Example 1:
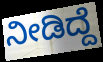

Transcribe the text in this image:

ನೀಡಿದ್ದೆ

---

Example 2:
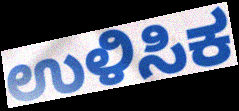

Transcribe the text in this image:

ಉಳಿಸಿಕ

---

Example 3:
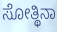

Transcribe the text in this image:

ಸೋತ್ಥಿನಾ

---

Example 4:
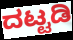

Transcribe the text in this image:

ದಟ್ಟಡಿ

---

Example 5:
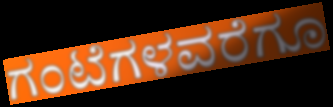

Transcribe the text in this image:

ಗಂಟೆಗಳವರೆಗೂ